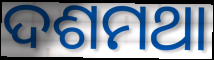
ଦଶମଥା